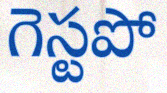
గెస్టపో